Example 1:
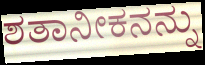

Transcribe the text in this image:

ಶತಾನೀಕನನ್ನು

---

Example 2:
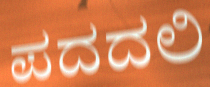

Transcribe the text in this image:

ಪದದಲಿ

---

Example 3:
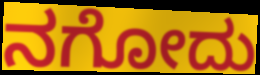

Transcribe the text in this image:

ನಗೋದು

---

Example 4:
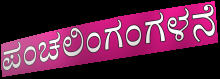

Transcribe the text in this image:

ಪಂಚಲಿಂಗಂಗಳನೆ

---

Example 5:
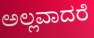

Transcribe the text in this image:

ಅಲ್ಲವಾದರೆ